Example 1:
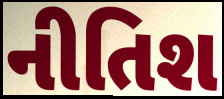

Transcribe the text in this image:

નીતિશ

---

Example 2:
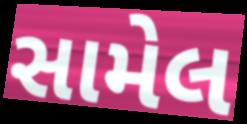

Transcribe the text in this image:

સામેલ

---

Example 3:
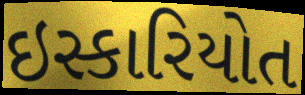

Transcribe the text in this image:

ઇસ્કારિયોત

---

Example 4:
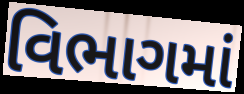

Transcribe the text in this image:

વિભાગમાં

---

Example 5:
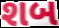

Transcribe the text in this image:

શબ